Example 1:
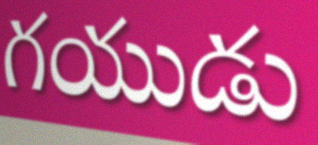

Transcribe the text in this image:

గయుడు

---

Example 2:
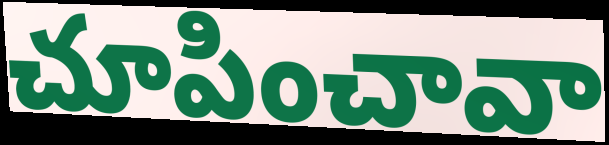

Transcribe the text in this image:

చూపించావా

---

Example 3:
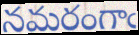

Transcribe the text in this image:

నమరంగాఁ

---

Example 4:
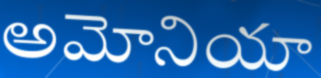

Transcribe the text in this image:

అమోనియా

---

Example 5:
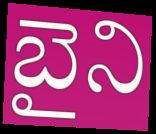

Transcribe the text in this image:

బైని